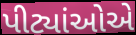
પીટ્યાંઓએ